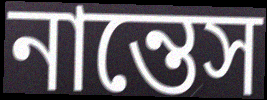
নান্তেস